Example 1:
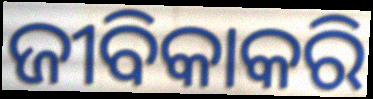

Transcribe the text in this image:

ଜୀବିକାକରି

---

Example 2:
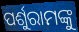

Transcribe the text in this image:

ପର୍ଶୁରାମଙ୍କୁ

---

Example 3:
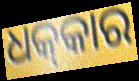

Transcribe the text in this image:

ଧକ୍‍କାର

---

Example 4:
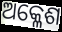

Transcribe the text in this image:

ଅକ୍ଳେଶ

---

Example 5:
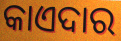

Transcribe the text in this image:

କାଏଦାର